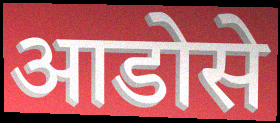
आडोसे